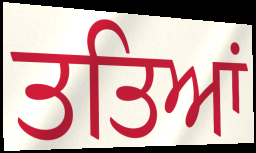
ਤਤਿਆਂ